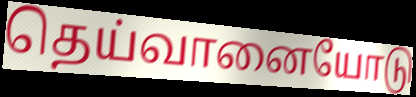
தெய்வானையோடு